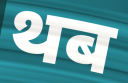
थब